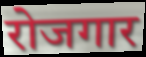
रोजगार